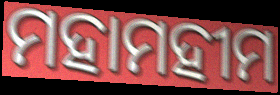
ମହାମହୀମ